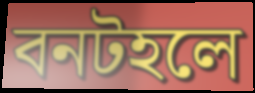
বনটহলে